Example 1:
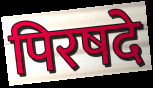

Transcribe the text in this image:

पिरषदे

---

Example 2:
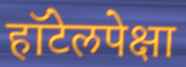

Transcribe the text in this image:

हॉटेलपेक्षा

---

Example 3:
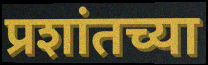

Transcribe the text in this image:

प्रशांतच्या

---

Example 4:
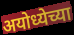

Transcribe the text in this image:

अयोध्येच्या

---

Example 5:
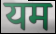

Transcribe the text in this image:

यम